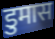
डुमास